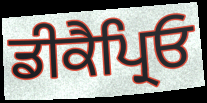
ਡੀਕੈਪ੍ਰਿਓ